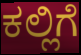
ಕಲ್ಲಿಗೆ